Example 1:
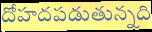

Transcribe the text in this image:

దోహదపడుతున్నది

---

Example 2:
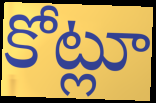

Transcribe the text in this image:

కోట్లూ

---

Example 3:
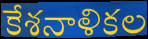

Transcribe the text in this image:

కేశనాళికల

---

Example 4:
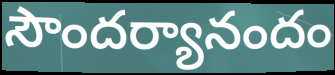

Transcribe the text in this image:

సౌందర్యానందం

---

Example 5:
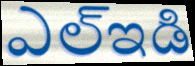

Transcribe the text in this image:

ఎల్ఇడి